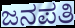
ಜನಪತಿ